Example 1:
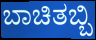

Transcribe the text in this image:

ಬಾಚಿತಬ್ಬಿ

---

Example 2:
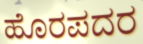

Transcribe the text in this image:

ಹೊರಪದರ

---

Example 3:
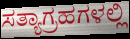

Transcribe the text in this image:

ಸತ್ಯಾಗ್ರಹಗಳಲ್ಲಿ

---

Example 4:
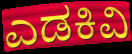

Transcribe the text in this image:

ಎಡಕಿವಿ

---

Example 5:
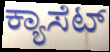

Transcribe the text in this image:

ಕ್ಯಾಸೆಟ್